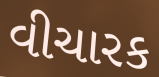
વીચારક